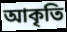
আকৃতি